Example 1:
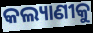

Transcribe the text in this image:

କଲ୍ୟାଣୀକୁ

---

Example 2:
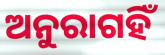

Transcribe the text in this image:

ଅନୁରାଗହିଁ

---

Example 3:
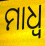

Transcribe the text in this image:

ମାଧ୍ଵ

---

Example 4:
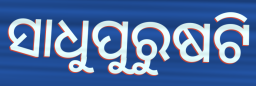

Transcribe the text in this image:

ସାଧୁପୁରୁଷଟି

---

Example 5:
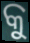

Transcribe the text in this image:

କୁ